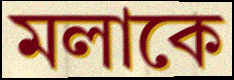
মলাকে